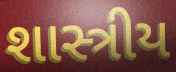
શાસ્ત્રીય